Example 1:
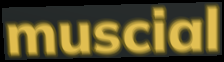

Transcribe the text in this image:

muscial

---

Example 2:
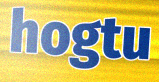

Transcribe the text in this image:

hogtu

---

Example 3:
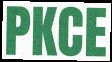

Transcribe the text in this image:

PKCE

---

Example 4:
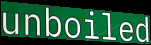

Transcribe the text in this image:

unboiled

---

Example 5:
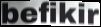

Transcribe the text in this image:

befikir